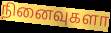
நினைவுகளா